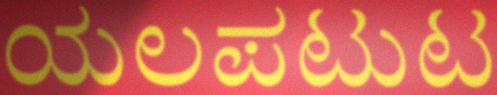
ಯಲಪಟುಟ